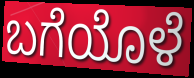
ಬಗೆಯೊಳೆ